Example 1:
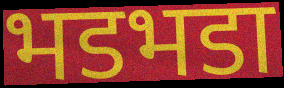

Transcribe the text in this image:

भडभडा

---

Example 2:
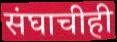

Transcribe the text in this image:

संघाचीही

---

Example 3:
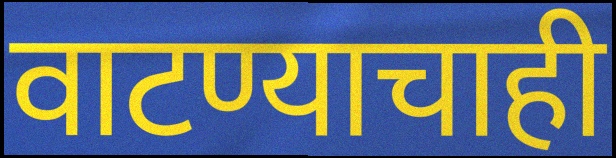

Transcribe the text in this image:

वाटण्याचाही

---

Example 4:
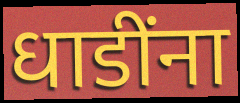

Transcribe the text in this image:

धाडींना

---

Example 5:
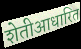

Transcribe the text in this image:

शेतीआधारित